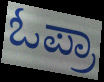
ಓಪ್ರಾ